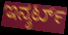
ಇನ್ಶರ್ಟ್